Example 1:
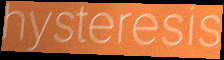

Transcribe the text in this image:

hysteresis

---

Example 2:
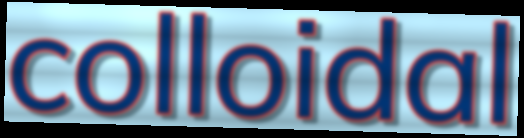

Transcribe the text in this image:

colloidal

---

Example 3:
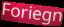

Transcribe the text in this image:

Foriegn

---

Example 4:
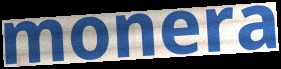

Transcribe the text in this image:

monera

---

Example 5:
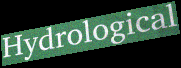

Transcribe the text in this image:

Hydrological